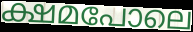
ക്ഷമപോലെ